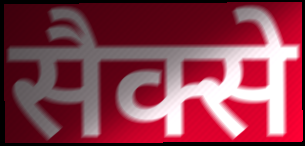
सैक्से